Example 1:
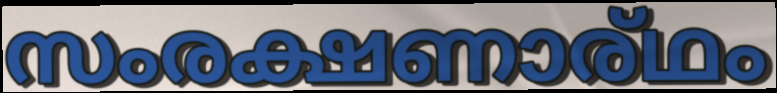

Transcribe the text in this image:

സംരക്ഷണാര്ഥം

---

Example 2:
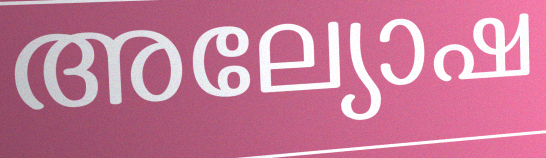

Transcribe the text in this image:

അല്യോഷ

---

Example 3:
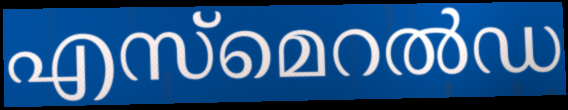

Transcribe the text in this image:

എസ്മെറൽഡ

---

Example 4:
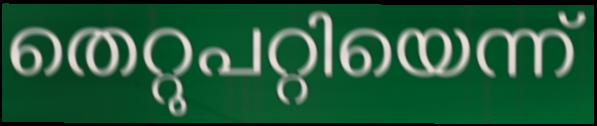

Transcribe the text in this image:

തെറ്റുപറ്റിയെന്ന്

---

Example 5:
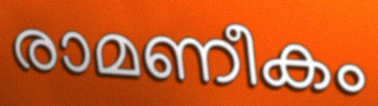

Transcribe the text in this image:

രാമണീകം